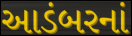
આડંબરનાં